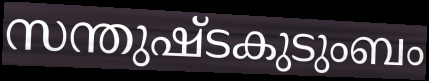
സന്തുഷ്ടകുടുംബം